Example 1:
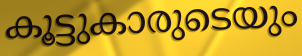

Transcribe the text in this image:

കൂട്ടുകാരുടെയും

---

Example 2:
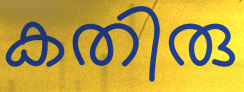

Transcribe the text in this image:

കതിരു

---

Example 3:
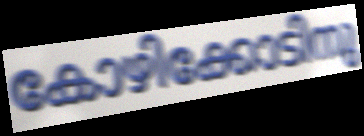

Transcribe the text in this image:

കോഴിക്കോടിനു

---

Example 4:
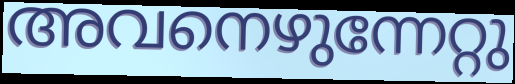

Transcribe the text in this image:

അവനെഴുന്നേറ്റു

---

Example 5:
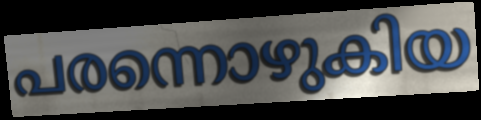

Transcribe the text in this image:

പരന്നൊഴുകിയ